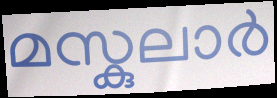
മസ്കുലാർ